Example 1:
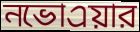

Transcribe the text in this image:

নভোএয়ার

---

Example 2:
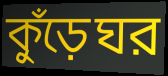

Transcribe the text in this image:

কুঁড়েঘর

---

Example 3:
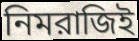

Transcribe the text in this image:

নিমরাজিই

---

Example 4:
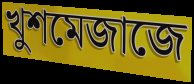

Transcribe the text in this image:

খুশমেজাজে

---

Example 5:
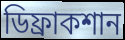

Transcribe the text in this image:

ডিফ্রাকশান